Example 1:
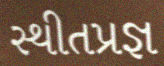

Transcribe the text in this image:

સ્થીતપ્રજ્ઞ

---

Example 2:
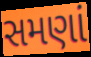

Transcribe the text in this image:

સમણાં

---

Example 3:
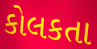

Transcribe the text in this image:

કોલકતા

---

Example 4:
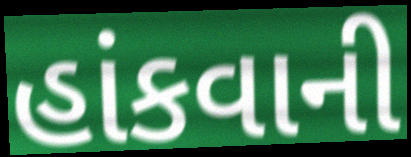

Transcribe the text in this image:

હાંકવાની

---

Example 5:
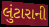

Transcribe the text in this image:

લુંટારાની